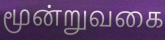
மூன்றுவகை